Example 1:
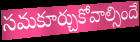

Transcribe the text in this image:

సమకూర్చుకోవాల్సిందే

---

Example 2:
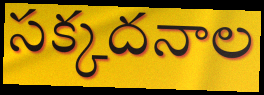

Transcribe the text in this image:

సక్కదనాల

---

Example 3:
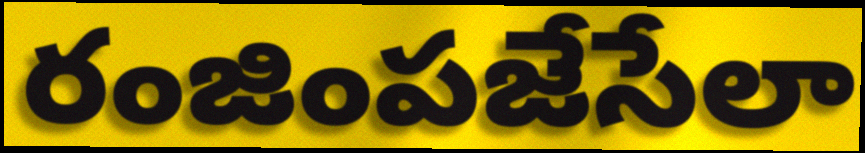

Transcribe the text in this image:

రంజింపజేసేలా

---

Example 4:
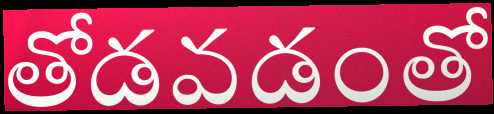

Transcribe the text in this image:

తోడవడంతో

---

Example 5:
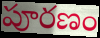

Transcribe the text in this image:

పూరణం